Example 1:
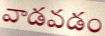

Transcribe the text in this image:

వాడవడం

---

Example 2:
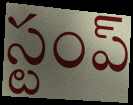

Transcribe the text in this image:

స్టంప్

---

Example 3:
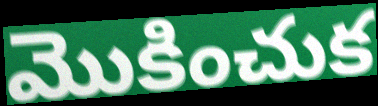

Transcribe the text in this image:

మొకించుక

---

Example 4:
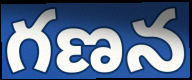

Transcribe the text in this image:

గణన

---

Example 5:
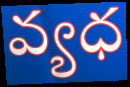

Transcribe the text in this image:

వ్యధ